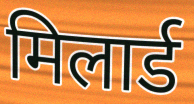
मिलार्ड